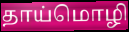
தாய்மொழி